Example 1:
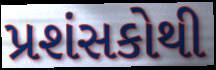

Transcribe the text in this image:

પ્રશંસકોથી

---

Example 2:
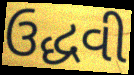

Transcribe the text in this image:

ઉદ્ધવી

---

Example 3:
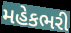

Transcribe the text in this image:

મહેકભરી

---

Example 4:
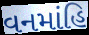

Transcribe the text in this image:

વનમાંહિ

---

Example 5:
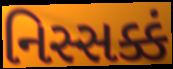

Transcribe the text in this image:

નિસ્સક્કં